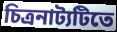
চিত্রনাট্যটিতে